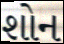
શોન